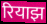
रियाझ